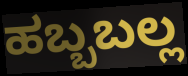
ಹಬ್ಬಬಲ್ಲ